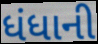
ધંધાની